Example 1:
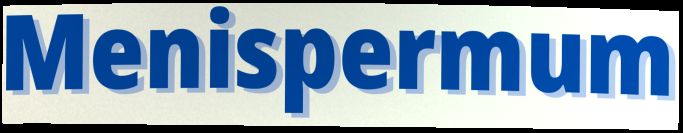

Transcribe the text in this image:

Menispermum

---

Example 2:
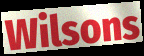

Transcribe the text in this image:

Wilsons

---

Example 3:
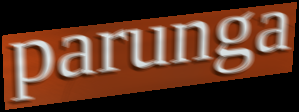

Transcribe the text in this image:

parunga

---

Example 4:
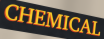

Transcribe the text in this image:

CHEMICAL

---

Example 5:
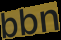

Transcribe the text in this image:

bbn